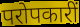
परोपकारीं